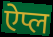
ऐप्ल